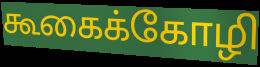
கூகைக்கோழி